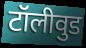
टॉलीवुड